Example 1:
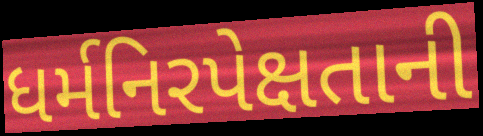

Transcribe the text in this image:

ધર્મનિરપેક્ષતાની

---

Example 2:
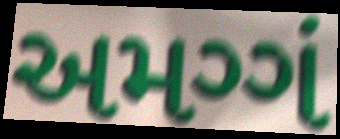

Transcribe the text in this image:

અમગ્ગં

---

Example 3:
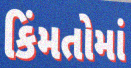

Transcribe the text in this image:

કિંમતોમાં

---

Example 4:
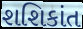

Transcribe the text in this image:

શશિકાંત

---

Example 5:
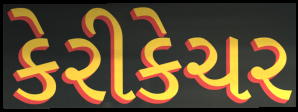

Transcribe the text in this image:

કેરીકેચર